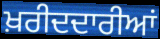
ਖ਼ਰੀਦਦਾਰੀਆਂ